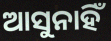
ଆସୁନାହିଁ